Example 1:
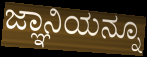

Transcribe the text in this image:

ಜ್ಞಾನಿಯನ್ನೂ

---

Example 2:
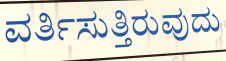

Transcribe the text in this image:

ವರ್ತಿಸುತ್ತಿರುವುದು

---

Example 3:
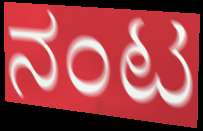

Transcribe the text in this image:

ನಂಟ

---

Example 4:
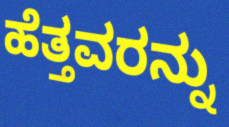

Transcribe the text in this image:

ಹೆತ್ತವರನ್ನು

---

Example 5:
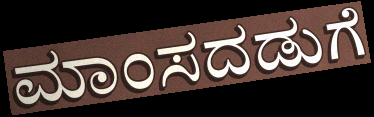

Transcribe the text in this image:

ಮಾಂಸದಡುಗೆ